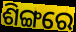
ଶିଙ୍ଗରେ